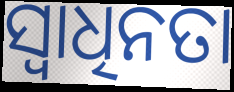
ସ୍ଵାଧିନତା